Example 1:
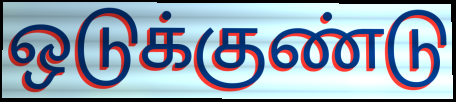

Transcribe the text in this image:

ஒடுக்குண்டு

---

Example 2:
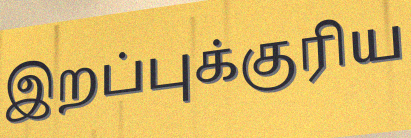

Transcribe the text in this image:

இறப்புக்குரிய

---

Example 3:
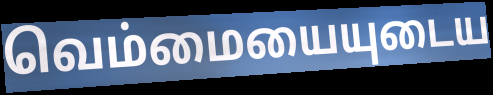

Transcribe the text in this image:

வெம்மையையுடைய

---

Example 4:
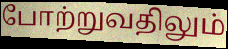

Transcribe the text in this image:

போற்றுவதிலும்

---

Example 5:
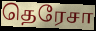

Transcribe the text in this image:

தெரேசா